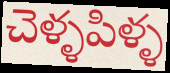
చెళ్ళపిళ్ళ